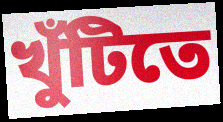
খুঁটিতে